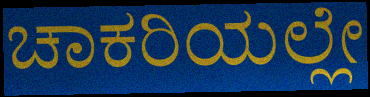
ಚಾಕರಿಯಲ್ಲೇ